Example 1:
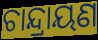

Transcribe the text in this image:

ଚାନ୍ଦ୍ରାୟଣ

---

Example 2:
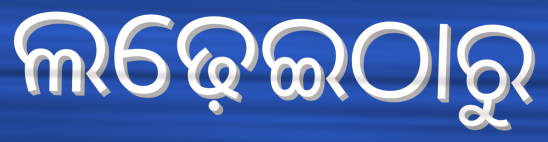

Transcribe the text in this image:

ଲଢ଼େଇଠାରୁ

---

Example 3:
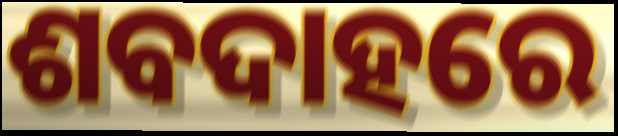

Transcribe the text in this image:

ଶବଦାହରେ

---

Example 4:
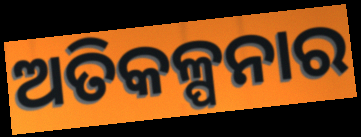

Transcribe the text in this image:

ଅତିକଳ୍ପନାର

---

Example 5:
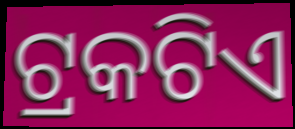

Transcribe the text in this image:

ଟ୍ରକଟିଏ